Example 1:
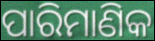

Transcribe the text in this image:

ପାରିମାଣିକ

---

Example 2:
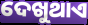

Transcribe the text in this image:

ଦେଖୁଥାଏ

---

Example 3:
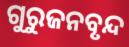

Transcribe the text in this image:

ଗୁରୁଜନବୃନ୍ଦ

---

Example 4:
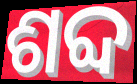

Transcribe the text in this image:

ଶବ୍ଦ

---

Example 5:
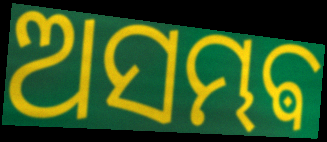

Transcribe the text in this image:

ଅସମ୍ଭଵ